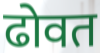
ढोवत